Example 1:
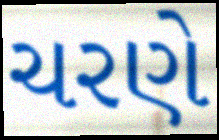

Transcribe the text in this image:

ચરણે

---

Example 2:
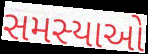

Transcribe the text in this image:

સમસ્યાઓ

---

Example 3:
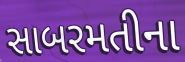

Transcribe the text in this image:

સાબરમતીના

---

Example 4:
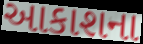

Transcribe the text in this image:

આકાશના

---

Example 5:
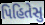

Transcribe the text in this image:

પિહિતેસુ